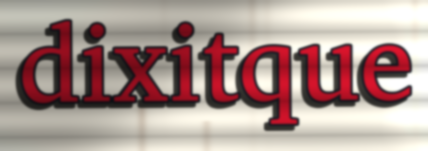
dixitque